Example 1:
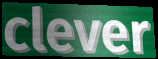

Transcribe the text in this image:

clever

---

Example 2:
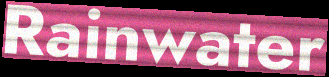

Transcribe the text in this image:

Rainwater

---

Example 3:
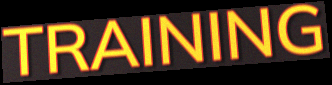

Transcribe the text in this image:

TRAINING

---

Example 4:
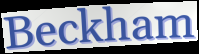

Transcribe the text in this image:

Beckham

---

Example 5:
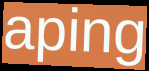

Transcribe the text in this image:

aping